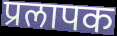
प्रलापक